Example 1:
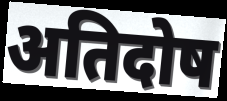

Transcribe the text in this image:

अतिदोष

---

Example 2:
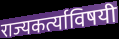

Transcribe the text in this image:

राज्यकर्त्याविषयी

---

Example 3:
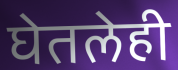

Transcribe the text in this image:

घेतलेही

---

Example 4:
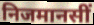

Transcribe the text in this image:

निजमानसीं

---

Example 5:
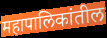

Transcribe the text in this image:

महापालिकांतील